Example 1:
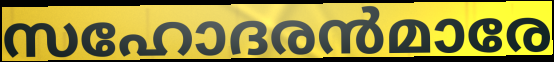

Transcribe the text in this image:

സഹോദരൻമാരേ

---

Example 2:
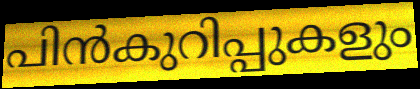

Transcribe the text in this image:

പിൻകുറിപ്പുകളും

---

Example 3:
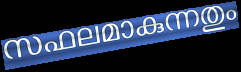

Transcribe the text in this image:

സഫലമാകുന്നതും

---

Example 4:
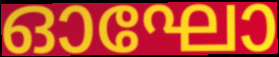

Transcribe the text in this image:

ഓഘോ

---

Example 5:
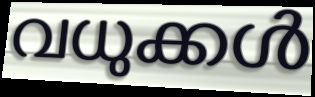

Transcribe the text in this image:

വധുക്കൾ